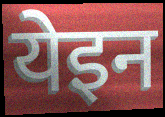
येइन